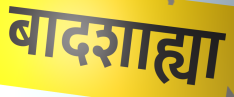
बादशाह्या